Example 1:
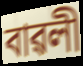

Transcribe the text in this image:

বাৱলী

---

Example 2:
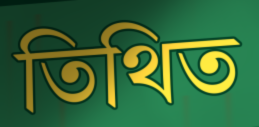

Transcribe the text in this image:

তিথিত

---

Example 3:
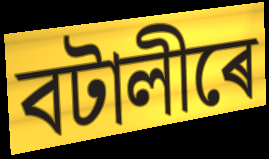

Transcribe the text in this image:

বটালীৰে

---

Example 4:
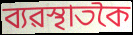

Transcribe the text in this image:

ব্যৱস্থাতকৈ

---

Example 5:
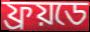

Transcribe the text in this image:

ফ্ৰয়ডে